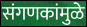
संगणकांमुळे